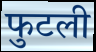
फुटली